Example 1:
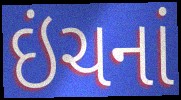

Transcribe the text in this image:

ઇંચનાં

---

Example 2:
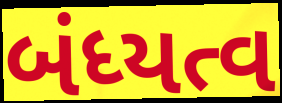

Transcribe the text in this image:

બંધ્યત્વ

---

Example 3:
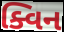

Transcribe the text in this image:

ક્વિન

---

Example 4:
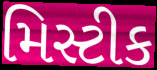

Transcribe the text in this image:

મિસ્ટીક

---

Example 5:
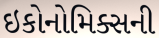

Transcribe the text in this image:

ઇકોનોમિક્સની